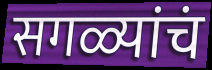
सगळ्यांचं